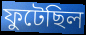
ফুটেছিল